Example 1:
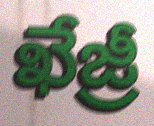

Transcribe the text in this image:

ఖేజ్రీ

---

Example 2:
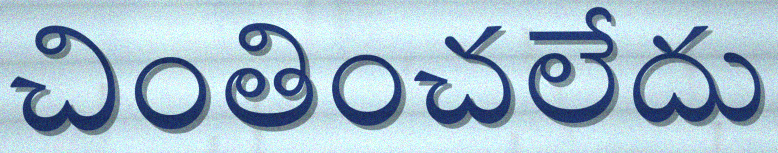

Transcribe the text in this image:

చింతించలేదు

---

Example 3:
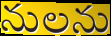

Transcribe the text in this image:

నులను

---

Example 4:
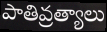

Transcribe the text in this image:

పాతివ్రత్యాలు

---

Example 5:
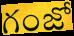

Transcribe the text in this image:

గంజో